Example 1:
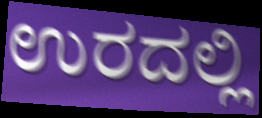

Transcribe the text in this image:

ಉರದಲ್ಲಿ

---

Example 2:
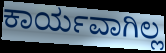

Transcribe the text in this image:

ಕಾರ್ಯವಾಗಿಲ್ಲ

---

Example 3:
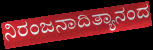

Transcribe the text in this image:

ನಿರಂಜನಾದಿತ್ಯಾನಂದ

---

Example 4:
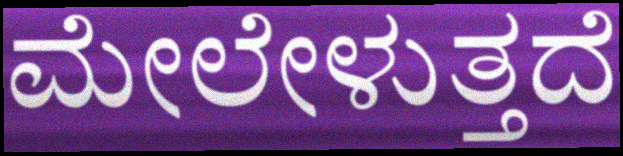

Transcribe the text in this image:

ಮೇಲೇಳುತ್ತದೆ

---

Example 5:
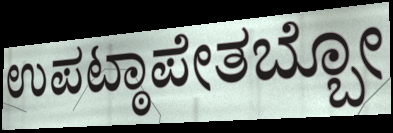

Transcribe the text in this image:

ಉಪಟ್ಠಾಪೇತಬ್ಬೋ